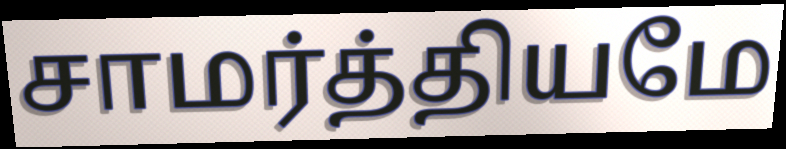
சாமர்த்தியமே